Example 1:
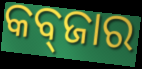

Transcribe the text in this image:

କବ୍‍ଜାର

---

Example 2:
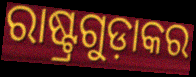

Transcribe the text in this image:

ରାଷ୍ଟ୍ରଗୁଡ଼ାକର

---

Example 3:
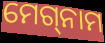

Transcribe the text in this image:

ମେଗ୍‌ନାମ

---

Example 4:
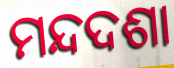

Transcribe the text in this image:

ମନ୍ଦଦଶା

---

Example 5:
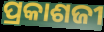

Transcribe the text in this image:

ପ୍ରକାଶଜୀ